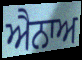
ਐਨਾਅ